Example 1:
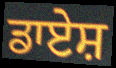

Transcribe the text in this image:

ਡਾਏਸ਼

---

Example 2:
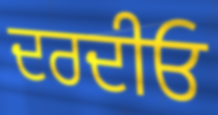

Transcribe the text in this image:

ਦਰਦੀਓ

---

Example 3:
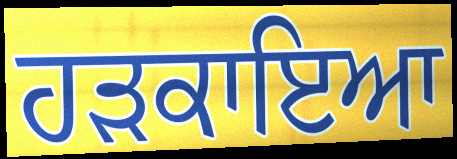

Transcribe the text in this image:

ਹੜਕਾਇਆ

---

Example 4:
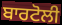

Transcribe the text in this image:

ਬਾਰਟੋਲੀ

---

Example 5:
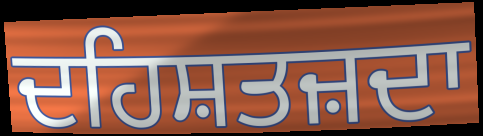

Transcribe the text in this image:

ਦਹਿਸ਼ਤਜ਼ਦਾ